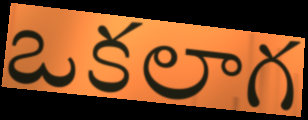
ఒకలాగ